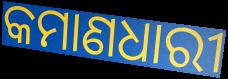
କମାଣଧାରୀ